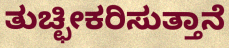
ತುಚ್ಛೀಕರಿಸುತ್ತಾನೆ